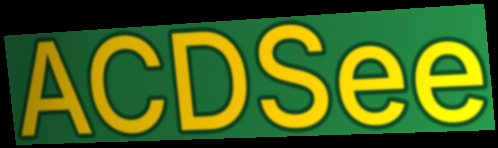
ACDSee